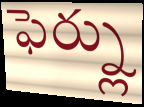
ఫెర్న్లు